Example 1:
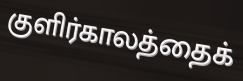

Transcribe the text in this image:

குளிர்காலத்தைக்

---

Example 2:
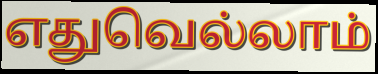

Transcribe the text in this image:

எதுவெல்லாம்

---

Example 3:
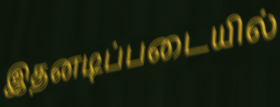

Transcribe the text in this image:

இதனடிப்படையில்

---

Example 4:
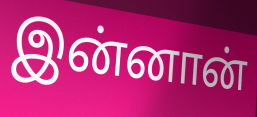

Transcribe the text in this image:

இன்னான்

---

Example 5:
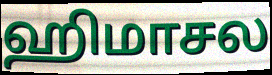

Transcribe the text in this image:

ஹிமாசல